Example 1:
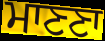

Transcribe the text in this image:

ਮਾਣਣਾ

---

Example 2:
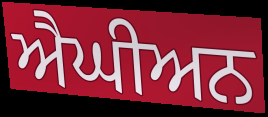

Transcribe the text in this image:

ਐਘੀਅਨ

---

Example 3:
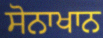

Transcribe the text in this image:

ਸੋਨਾਖਾਨ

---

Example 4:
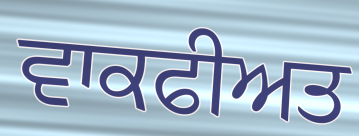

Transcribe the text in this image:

ਵਾਕਫੀਅਤ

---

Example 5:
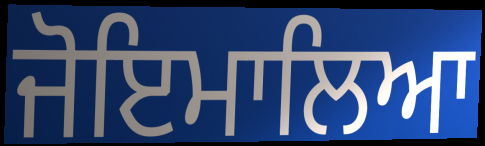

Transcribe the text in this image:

ਜੋਇਮਾਲਿਆ